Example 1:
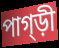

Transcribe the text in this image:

পাগ্ড়ী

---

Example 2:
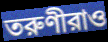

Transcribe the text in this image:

তরুণীরাও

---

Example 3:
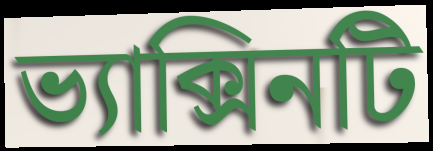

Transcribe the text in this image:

ভ্যাক্সিনটি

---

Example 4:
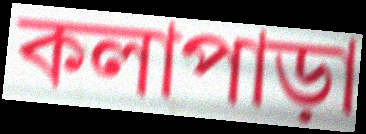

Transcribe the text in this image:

কলাপাড়া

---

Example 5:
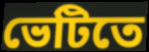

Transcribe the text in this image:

ভেটিতে